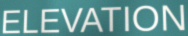
ELEVATION